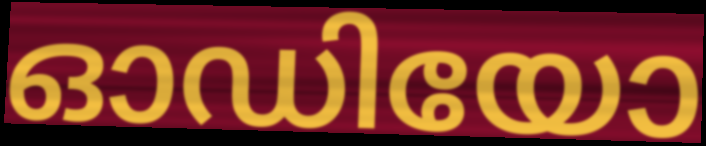
ഓഡിയോ